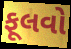
ફૂલવો